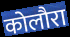
कोलौरा